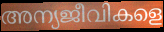
അന്യജീവികളെ